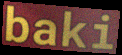
baki